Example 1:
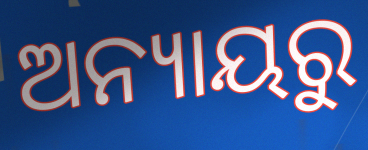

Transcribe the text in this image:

ଅନ୍ୟାୟରୁ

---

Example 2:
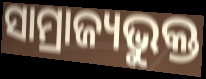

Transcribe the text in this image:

ସାମ୍ରାଜ୍ୟଭୁକ୍ତ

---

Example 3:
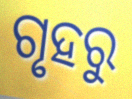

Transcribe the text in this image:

ଗୃହରୁ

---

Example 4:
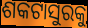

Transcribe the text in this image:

ଶକଟାସୁରକୁ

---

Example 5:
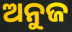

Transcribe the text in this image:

ଅନୁଜ